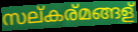
സല്കര്മങ്ങള്